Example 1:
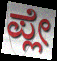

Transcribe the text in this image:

ಪ್ಲೇ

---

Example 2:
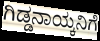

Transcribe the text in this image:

ಗಿಡ್ಡನಾಯ್ಕನಿಗೆ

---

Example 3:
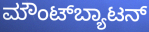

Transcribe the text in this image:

ಮೌಂಟ್‌ಬ್ಯಾಟನ್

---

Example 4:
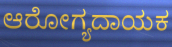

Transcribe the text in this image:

ಆರೋಗ್ಯದಾಯಕ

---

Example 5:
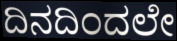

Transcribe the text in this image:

ದಿನದಿಂದಲೇ